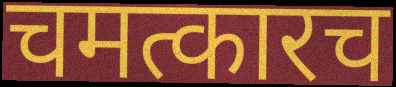
चमत्कारच